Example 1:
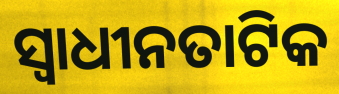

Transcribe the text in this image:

ସ୍ୱାଧୀନତାଟିକ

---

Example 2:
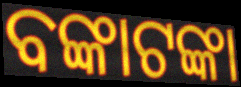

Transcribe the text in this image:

ବଙ୍କାଟଙ୍କା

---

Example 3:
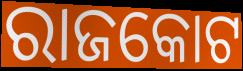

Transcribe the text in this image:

ରାଜକୋଟ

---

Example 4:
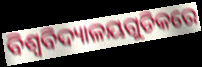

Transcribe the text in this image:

ବିଶ୍ୱବିଦ୍ୟାଳୟଗୁଡିକରେ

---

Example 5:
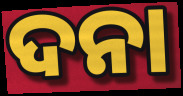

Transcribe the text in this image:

ଦନା